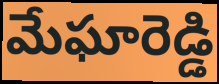
మేఘారెడ్డి